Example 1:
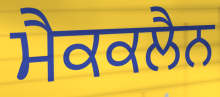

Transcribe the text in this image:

ਮੈਕਕਲੈਨ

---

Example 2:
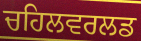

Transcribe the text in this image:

ਚਹਿਲਵਰਲਡ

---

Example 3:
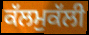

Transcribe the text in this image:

ਕੱਲਮੁਕੱਲੀ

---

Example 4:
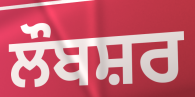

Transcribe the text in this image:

ਲੌਬਸ਼ਰ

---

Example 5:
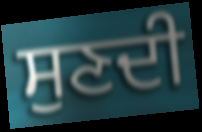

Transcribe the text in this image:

ਸੁਣਦੀ